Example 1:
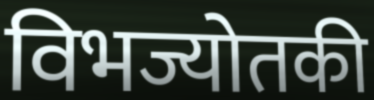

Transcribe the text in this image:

विभज्योतकी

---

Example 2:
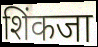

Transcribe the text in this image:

शिंकजा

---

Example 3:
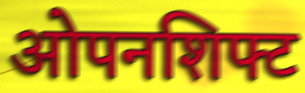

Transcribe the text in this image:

ओपनशिफ्ट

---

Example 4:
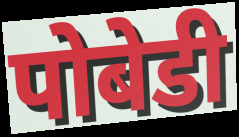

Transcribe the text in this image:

पोबेडी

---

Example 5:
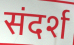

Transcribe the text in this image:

संदर्श